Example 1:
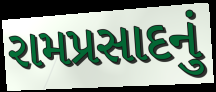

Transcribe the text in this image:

રામપ્રસાદનું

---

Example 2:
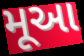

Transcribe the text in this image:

મૂઆ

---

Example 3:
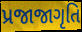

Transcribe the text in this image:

પ્રજાજાગૃતિ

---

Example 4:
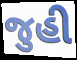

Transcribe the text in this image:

જુહી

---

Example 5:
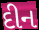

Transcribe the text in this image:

દીન